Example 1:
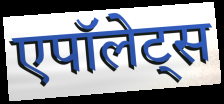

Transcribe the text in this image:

एपॉलेट्स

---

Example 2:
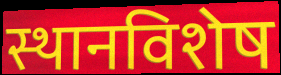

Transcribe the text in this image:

स्थानविशेष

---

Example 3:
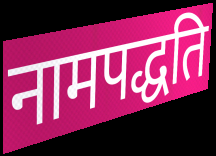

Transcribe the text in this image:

नामपद्धति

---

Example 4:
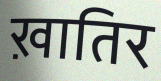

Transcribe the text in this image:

ख़ातिर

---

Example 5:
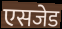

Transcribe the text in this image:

एसजेड